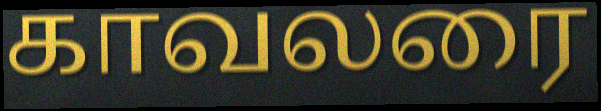
காவலரை